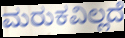
ಮರುಕವಿಲ್ಲದೆ